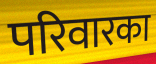
परिवारका